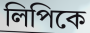
লিপিকে